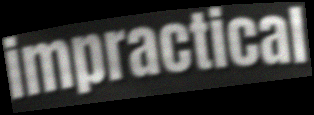
impractical